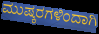
ಮುಷ್ಕರಗಳಿಂದಾಗಿ